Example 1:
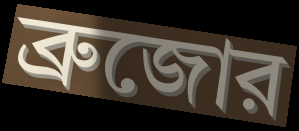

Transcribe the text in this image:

ব্রুজোর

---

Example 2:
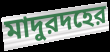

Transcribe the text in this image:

মাদুরদহের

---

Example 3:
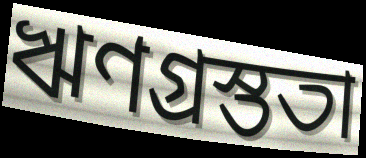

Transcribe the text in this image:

ঋণগ্রস্ততা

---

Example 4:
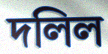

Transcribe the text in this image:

দলিল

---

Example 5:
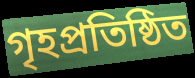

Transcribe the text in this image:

গৃহপ্রতিষ্ঠিত